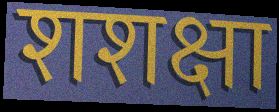
शशक्षा